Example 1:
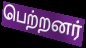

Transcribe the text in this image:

பெற்றனர்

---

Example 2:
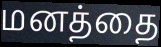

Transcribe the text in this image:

மனத்தை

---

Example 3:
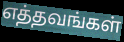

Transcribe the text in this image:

எத்தவங்கள்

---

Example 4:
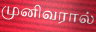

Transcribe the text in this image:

முனிவரால்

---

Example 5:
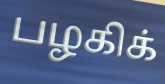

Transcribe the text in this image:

பழகிக்